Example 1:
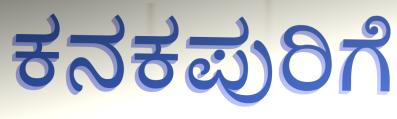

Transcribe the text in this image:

ಕನಕಪುರಿಗೆ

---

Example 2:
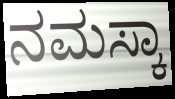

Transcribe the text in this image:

ನಮಸ್ಕಾ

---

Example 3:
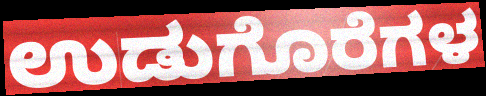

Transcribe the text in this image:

ಉಡುಗೊರೆಗಳ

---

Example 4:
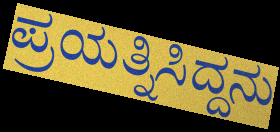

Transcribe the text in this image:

ಪ್ರಯತ್ನಿಸಿದ್ದನು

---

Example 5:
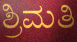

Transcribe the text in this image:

ಶ್ರಿಮತಿ